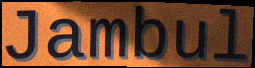
Jambul